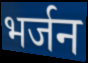
भर्जन